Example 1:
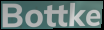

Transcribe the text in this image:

Bottke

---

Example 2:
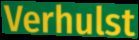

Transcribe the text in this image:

Verhulst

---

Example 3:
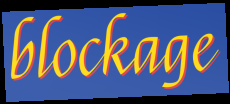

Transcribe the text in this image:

blockage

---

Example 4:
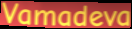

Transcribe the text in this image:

Vamadeva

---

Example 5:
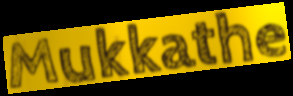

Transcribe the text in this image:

Mukkathe